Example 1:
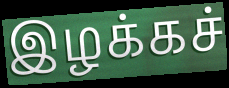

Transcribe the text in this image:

இழக்கச்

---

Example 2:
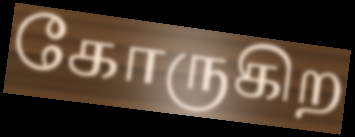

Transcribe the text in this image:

கோருகிற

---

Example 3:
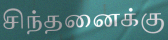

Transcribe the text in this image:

சிந்தனைக்கு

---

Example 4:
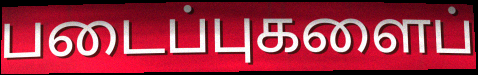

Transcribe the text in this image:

படைப்புகளைப்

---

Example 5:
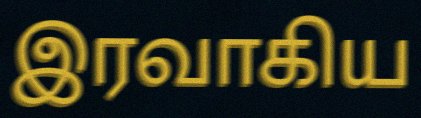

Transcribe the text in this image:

இரவாகிய